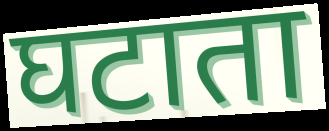
घटाता